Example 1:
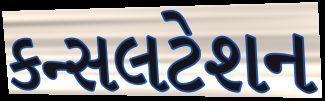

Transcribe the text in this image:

કન્સલટેશન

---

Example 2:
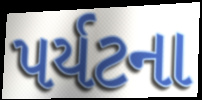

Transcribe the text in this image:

પર્યટના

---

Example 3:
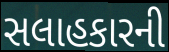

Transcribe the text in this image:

સલાહકારની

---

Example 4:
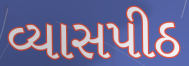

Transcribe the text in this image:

વ્યાસપીઠ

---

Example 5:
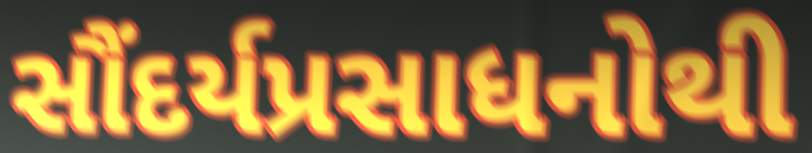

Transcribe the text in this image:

સૌંદર્યપ્રસાધનોથી